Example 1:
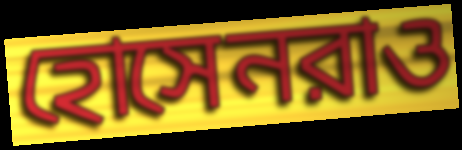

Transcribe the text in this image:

হোসেনরাও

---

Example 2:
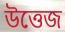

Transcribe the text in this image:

উত্তেজ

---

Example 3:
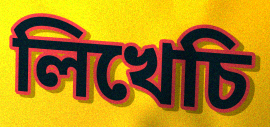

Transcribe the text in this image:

লিখেচি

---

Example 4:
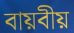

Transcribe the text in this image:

বায়বীয়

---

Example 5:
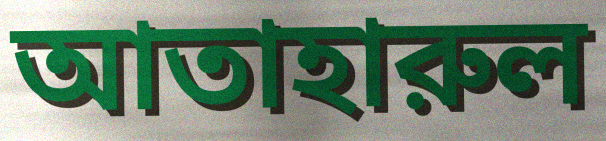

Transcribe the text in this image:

আতাহারুল